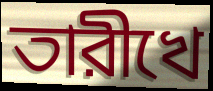
তারীখে